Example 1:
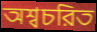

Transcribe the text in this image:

অশ্বচরিত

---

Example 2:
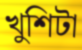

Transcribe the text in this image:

খুশিটা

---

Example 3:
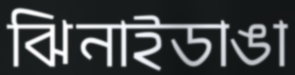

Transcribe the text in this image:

ঝিনাইডাঙা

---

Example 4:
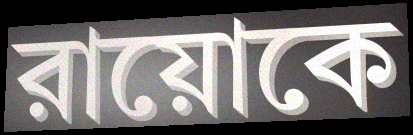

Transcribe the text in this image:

রায়োকে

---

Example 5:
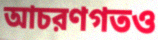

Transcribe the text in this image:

আচরণগতও